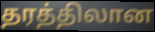
தரத்திலான